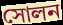
সোলন